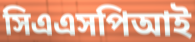
সিএএসপিআই